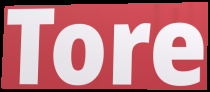
Tore